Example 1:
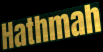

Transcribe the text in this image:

Hathmah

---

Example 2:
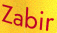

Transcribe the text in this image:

Zabir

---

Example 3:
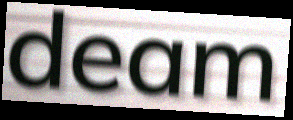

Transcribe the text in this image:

deam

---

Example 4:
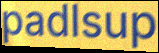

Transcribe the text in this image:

padlsup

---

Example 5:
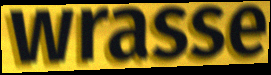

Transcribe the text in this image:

wrasse